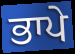
ਭਾਪੇ